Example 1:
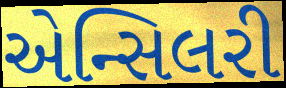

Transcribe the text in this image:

એન્સિલરી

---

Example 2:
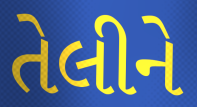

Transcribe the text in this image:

તેલીને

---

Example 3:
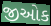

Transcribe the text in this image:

જીઓક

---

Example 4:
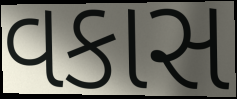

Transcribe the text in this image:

વકાસ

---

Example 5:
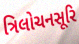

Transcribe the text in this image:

ત્રિલોચનસૂરિ